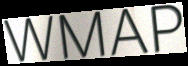
WMAP